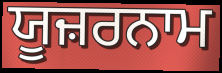
ਯੂਜ਼ਰਨਾਮ